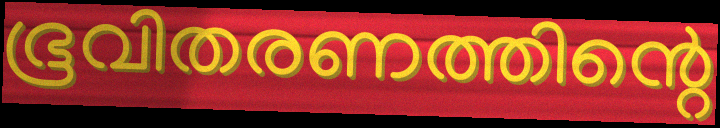
ഭൂവിതരണത്തിന്റെ